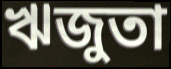
ঋজুতা